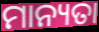
ମାନ୍ୟତା